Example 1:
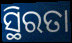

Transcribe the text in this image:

ସ୍ଥିରତା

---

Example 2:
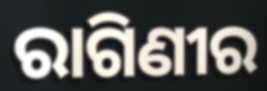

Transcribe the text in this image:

ରାଗିଣୀର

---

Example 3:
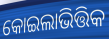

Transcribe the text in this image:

କୋଇଲାଭିତ୍ତିକ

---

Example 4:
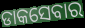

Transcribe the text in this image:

ଡାକସେବାର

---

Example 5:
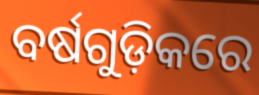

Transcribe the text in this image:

ବର୍ଷଗୁଡ଼ିକରେ